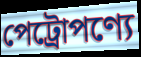
পেট্রোপণ্যে